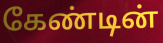
கேண்டின்